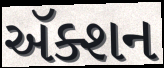
ઍક્શન